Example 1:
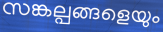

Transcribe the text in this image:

സങ്കല്പങ്ങളെയും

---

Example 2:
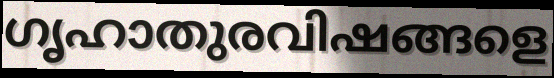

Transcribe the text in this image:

ഗൃഹാതുരവിഷങ്ങളെ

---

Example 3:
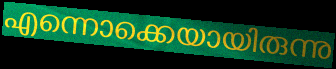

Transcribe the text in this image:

എന്നൊക്കെയായിരുന്നു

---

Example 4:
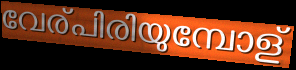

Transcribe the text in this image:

വേര്പിരിയുമ്പോള്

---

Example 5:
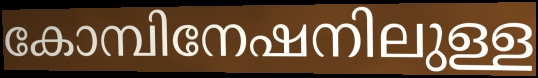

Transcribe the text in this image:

കോമ്പിനേഷനിലുള്ള